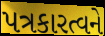
પત્રકારત્વને